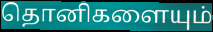
தொனிகளையும்